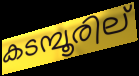
കടമ്പൂരില്